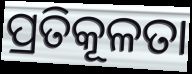
ପ୍ରତିକୂଳତା